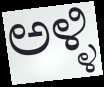
ಅಳ್ಳಿ